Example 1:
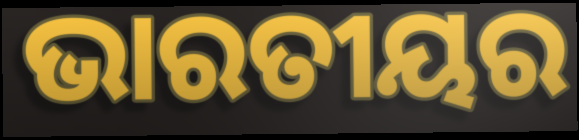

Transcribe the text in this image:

ଭାରତୀୟର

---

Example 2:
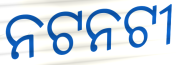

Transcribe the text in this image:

ନଟନଟୀ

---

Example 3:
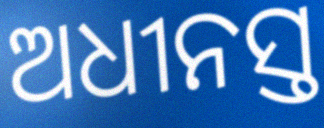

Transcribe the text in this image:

ଅଧୀନସ୍ତ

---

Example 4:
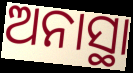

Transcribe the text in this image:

ଅନାସ୍ଥା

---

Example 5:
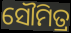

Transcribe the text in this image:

ସୌମିତ୍ର